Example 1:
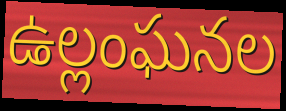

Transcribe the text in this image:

ఉల్లంఘనల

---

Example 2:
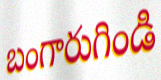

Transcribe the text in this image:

బంగారుగిండి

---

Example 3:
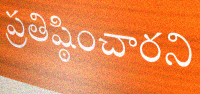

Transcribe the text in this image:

ప్రతిష్ఠించారని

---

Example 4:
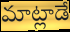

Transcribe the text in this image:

మాట్లాడే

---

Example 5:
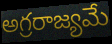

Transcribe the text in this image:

అగ్రరాజ్యమే